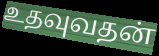
உதவுவதன்